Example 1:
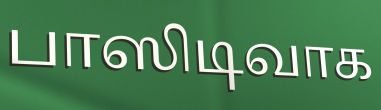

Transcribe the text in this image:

பாஸிடிவாக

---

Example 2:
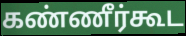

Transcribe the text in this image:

கண்ணீர்கூட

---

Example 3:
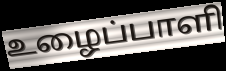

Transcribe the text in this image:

உழைப்பாளி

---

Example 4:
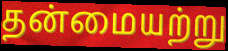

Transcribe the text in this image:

தன்மையற்று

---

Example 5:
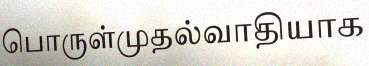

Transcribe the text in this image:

பொருள்முதல்வாதியாக